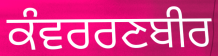
ਕੰਵਰਰਣਬੀਰ